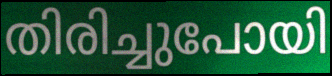
തിരിച്ചുപോയി